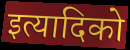
इत्यादिको